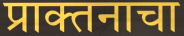
प्राक्तनाचा